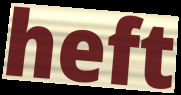
heft